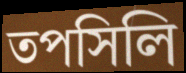
তপসিলি